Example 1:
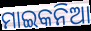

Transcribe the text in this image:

ମାଇକନିଆ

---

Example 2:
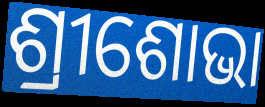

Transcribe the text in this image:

ଶ୍ରୀଶୋଭା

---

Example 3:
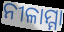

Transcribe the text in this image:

ନୀଳାମ୍ମା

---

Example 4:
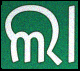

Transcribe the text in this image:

ଲା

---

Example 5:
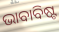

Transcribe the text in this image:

ଭାବାବିଷ୍ଟ